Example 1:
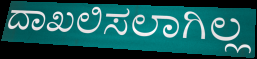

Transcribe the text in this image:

ದಾಖಲಿಸಲಾಗಿಲ್ಲ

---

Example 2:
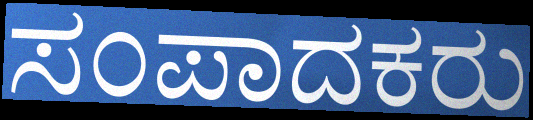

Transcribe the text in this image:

ಸಂಪಾದಕರು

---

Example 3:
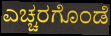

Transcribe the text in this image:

ಎಚ್ಚರಗೊಂಡೆ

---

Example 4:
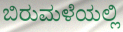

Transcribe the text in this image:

ಬಿರುಮಳೆಯಲ್ಲಿ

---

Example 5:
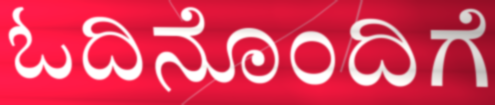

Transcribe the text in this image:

ಓದಿನೊಂದಿಗೆ